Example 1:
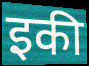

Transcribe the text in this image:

इकी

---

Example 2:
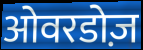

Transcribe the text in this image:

ओवरडोज़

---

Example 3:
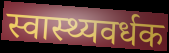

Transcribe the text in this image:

स्वास्थ्यवर्धक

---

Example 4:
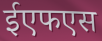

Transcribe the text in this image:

ईएफएस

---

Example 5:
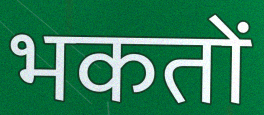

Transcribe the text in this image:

भकतों